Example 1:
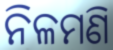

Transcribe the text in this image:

ନିଳମଣି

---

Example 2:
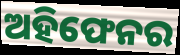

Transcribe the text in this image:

ଅହିଫେନର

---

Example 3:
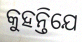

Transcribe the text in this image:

କୁହନ୍ତିଯେ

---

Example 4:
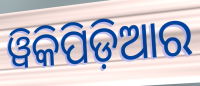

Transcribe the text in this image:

ୱିକିପିଡ଼ିଆର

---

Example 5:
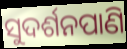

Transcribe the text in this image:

ସୁଦର୍ଶନପାଣି